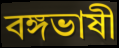
বঙ্গভাষী